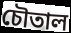
চৌতাল